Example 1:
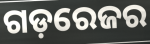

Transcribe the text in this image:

ଗଡ଼ରେଜର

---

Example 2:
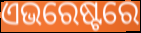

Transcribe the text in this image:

ଏଭରେଷ୍ଟରେ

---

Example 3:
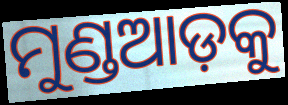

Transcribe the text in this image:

ମୁଣ୍ଡଆଡ଼କୁ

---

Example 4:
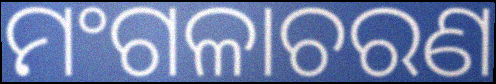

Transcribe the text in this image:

ମଂଗଳାଚରଣ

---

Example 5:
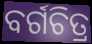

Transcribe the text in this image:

ବର୍ଗଚିତ୍ର